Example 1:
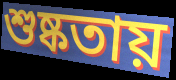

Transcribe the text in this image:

শুষ্কতায়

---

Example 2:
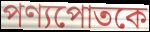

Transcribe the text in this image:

পণ্যপোতকে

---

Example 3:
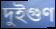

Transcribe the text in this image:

দুইগুণ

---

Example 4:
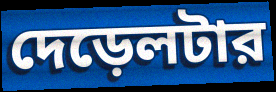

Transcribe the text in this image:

দেড়েলটার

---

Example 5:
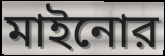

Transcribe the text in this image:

মাইনোর